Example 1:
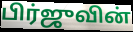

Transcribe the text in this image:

பிர்ஜுவின்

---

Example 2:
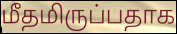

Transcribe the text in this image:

மீதமிருப்பதாக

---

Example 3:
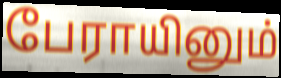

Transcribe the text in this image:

பேராயினும்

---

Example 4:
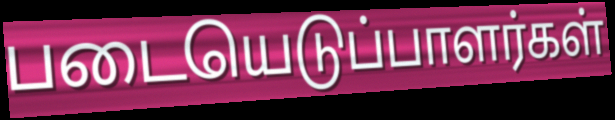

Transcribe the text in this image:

படையெடுப்பாளர்கள்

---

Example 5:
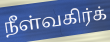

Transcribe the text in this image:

நீள்வகிர்க்